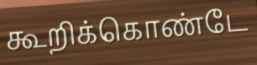
கூறிக்கொண்டே